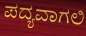
ಪದ್ಯವಾಗಲಿ